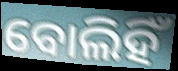
ବୋଲିହିଁ